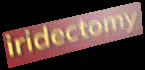
iridectomy